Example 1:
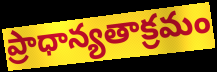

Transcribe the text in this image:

ప్రాధాన్యతాక్రమం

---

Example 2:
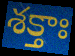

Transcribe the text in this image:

శక్తాః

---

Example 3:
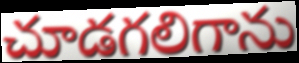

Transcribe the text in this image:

చూడగలిగాను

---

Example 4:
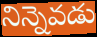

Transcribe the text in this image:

నిన్నెవడు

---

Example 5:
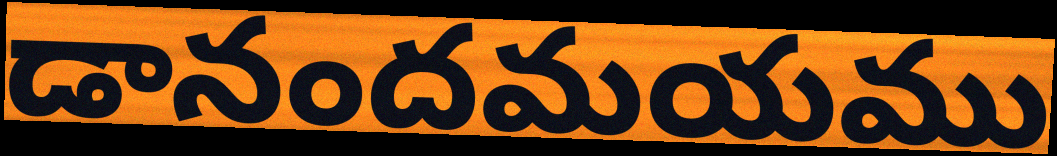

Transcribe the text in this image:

డానందమయము